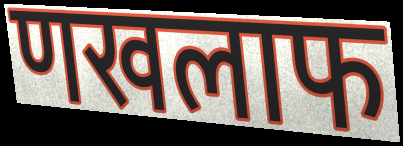
णखलाफ